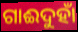
ଗାଈଦୁହାଁ